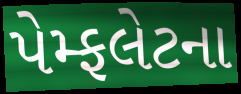
પેમ્ફલેટના